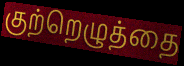
குற்றெழுத்தை